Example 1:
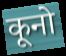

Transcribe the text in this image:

कूनो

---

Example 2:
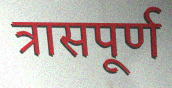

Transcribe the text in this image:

त्रासपूर्ण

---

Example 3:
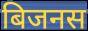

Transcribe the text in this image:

बिजनस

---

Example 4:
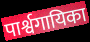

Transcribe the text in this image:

पार्श्वगायिका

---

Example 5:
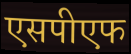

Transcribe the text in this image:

एसपीएफ